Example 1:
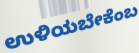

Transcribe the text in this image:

ಉಳಿಯಬೇಕೆಂಬ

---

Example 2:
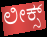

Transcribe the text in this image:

ಲೀಕ್ಸ್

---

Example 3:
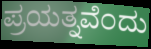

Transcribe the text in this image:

ಪ್ರಯತ್ನವೆಂದು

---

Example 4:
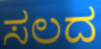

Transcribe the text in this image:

ಸಲದ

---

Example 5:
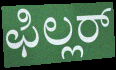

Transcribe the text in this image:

ಫಿಲ್ಲರ್